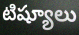
టిష్యూలు